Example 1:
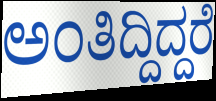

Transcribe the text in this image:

ಅಂತಿದ್ದಿದ್ದರೆ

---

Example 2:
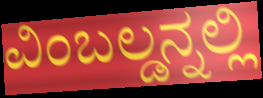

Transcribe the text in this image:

ವಿಂಬಲ್ಡನ್ನಲ್ಲಿ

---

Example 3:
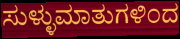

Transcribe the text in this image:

ಸುಳ್ಳುಮಾತುಗಳಿಂದ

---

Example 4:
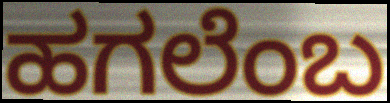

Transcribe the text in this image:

ಹಗಲೆಂಬ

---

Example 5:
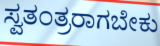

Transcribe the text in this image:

ಸ್ವತಂತ್ರರಾಗಬೇಕು